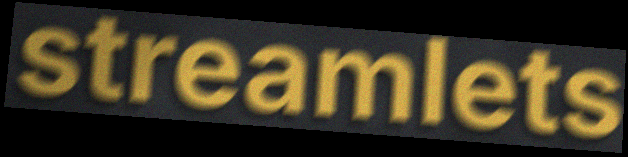
streamlets